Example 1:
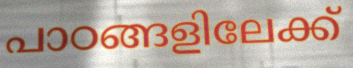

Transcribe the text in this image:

പാഠങ്ങളിലേക്ക്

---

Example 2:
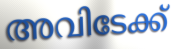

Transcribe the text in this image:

അവിടേക്ക്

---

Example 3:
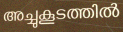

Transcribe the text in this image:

അച്ചുകൂടത്തിൽ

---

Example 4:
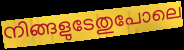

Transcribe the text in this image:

നിങ്ങളുടേതുപോലെ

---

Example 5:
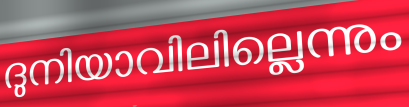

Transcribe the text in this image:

ദുനിയാവിലില്ലെന്നും